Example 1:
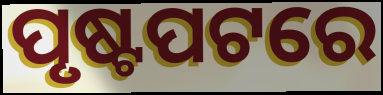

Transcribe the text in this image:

ପୃଷ୍ଟପଟରେ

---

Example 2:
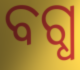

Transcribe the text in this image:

ବଗ୍ଧ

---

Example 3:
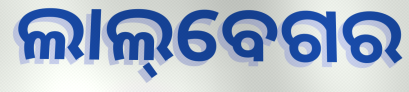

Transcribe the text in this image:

ଲାଲ୍‌ବେଗର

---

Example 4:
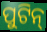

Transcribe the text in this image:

ପୁଟିନ୍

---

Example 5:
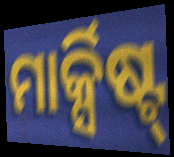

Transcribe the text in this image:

ମାର୍କ୍ସିଷ୍ଟ୍